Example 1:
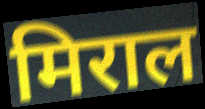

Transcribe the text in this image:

मिराल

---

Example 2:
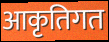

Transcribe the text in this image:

आकृतिगत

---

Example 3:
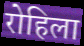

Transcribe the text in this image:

रोहिला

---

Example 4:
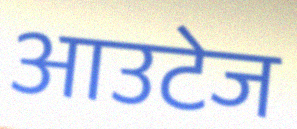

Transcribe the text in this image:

आउटेज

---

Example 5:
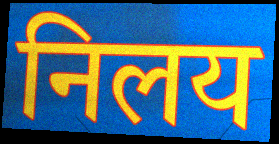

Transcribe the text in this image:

निलय